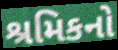
શ્રમિકનો